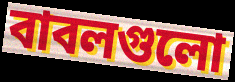
বাবলগুলো